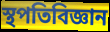
স্থপতিবিজ্ঞান